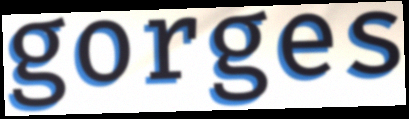
gorges